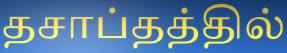
தசாப்தத்தில்